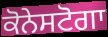
ਕੋਨੇਸਟੋਗਾ